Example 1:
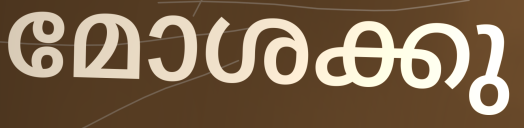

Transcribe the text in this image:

മോശക്കു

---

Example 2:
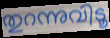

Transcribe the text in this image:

തുറന്നുവിടൂ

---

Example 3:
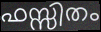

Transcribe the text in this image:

ഫസ്സിതം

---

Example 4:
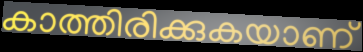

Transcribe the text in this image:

കാത്തിരിക്കുകയാണ്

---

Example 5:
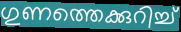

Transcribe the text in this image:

ഗുണത്തെക്കുറിച്ച്